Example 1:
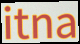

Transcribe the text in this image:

itna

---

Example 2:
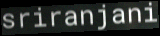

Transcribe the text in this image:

sriranjani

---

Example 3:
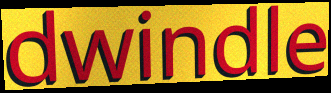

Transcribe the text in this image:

dwindle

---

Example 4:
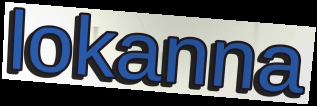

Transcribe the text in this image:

lokanna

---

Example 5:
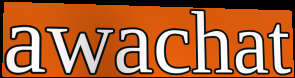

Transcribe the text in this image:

awachat